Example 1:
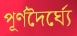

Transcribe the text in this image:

পূর্ণদৈর্ঘ্যে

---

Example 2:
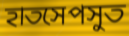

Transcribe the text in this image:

হাতসেপসুত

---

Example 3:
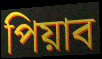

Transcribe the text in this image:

পিয়াব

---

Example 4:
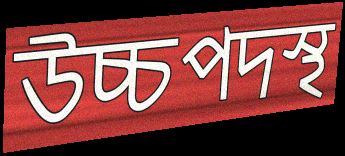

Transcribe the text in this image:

উচ্চপদস্থ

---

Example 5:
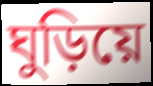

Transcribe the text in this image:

ঘুড়িয়ে